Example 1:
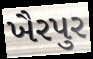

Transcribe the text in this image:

ખૈરપુર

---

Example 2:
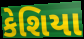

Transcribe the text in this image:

કેશિયા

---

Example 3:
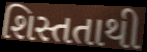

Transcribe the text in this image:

શિસ્તતાથી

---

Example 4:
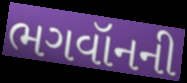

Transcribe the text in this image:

ભગવૉનની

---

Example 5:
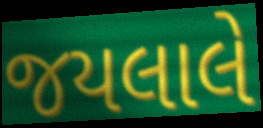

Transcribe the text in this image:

જયલાલે